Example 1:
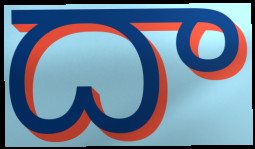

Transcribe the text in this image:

దా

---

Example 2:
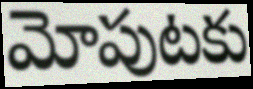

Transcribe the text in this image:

మోపుటకు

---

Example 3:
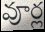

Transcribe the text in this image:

వూర్ల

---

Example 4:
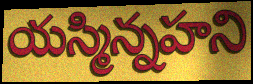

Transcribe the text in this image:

యస్మిన్నహని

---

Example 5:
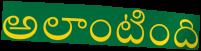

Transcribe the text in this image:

అలాంటింది